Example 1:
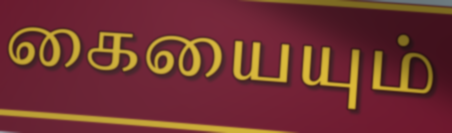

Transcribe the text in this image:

கையையும்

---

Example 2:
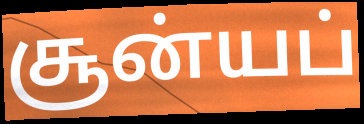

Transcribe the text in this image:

சூன்யப்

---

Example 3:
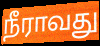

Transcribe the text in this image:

நீராவது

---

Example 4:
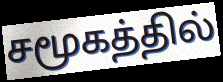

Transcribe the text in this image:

சமூகத்தில்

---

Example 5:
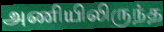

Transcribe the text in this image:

அணியிலிருந்த